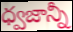
ధ్వజాన్నీ